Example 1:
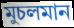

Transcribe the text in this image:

মুচলমান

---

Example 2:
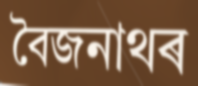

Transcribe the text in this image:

বৈজনাথৰ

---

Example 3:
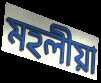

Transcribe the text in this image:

মহলীয়া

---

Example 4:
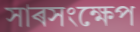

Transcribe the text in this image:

সাৰসংক্ষেপ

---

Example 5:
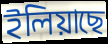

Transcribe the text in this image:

ইলিয়াছে